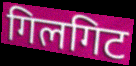
गिलगिट